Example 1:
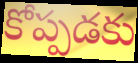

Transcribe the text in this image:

కోప్పడకు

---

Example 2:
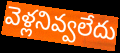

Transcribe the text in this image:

వెళ్లనివ్వలేదు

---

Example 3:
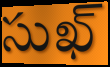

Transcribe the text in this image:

సుఖ్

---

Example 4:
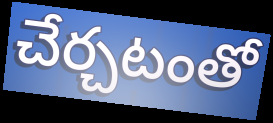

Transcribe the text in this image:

చేర్చటంతో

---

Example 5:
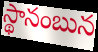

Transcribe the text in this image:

స్థానంబున